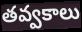
తవ్వకాలు